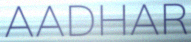
AADHAR